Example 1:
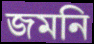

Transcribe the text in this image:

জমনি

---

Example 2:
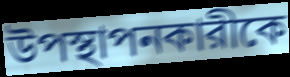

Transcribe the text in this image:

উপস্থাপনকারীকে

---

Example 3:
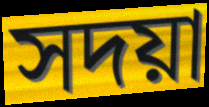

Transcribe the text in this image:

সদয়া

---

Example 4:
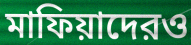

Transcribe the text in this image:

মাফিয়াদেরও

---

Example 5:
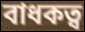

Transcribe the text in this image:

বাধকত্ব